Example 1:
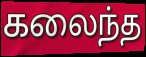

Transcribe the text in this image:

கலைந்த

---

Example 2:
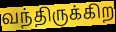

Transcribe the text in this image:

வந்திருக்கிற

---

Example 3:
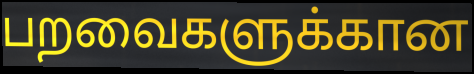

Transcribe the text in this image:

பறவைகளுக்கான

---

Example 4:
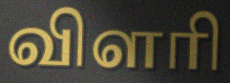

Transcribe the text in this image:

விளரி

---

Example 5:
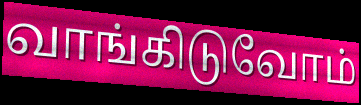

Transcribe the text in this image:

வாங்கிடுவோம்